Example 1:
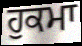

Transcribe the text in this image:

ਹੁਕਮਾ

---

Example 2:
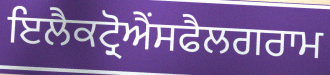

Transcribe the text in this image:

ਇਲੈਕਟ੍ਰੋਐਂਸਫੈਲਗਰਾਮ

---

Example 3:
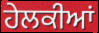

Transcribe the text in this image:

ਹੇਲਕੀਆਂ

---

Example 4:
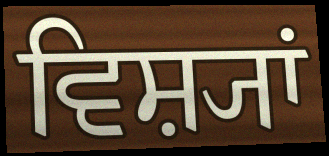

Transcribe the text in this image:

ਵਿਸ਼੍ਯਾਂ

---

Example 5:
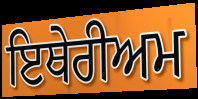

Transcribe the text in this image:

ਇਥੇਰੀਅਮ